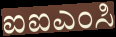
ಐಐಎಂಸಿ